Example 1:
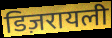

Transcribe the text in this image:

डिज़रायली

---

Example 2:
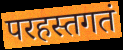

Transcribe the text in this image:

परहस्तगतं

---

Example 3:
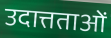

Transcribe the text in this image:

उदात्तताओं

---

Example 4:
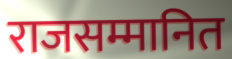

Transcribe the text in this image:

राजसम्मानित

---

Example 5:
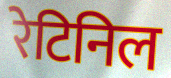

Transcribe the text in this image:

रेटिनिल